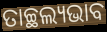
ତାଚ୍ଛଲ୍ୟଭାବ